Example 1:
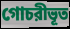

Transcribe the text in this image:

গোচরীভূত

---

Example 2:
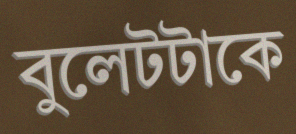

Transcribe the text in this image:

বুলেটটাকে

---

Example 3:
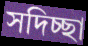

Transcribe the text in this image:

সদিচ্ছা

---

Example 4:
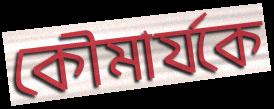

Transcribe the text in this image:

কৌমার্যকে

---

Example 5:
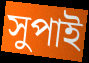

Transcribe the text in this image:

সুপাই